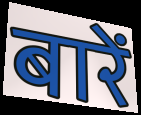
बारें